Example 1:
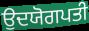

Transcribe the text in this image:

ਉਦਯੋਗਪਤੀ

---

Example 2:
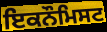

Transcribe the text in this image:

ਇਕਨੌਮਿਸਟ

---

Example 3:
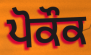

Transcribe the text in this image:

ਪੋਕੌਕ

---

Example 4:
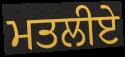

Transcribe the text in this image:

ਮਤਲੀਏ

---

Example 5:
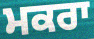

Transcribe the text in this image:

ਮਕਰਾ